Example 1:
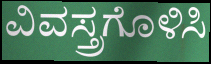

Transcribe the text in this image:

ವಿವಸ್ತ್ರಗೊಳಿಸಿ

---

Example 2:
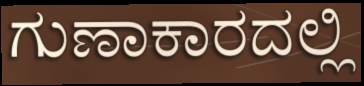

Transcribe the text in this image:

ಗುಣಾಕಾರದಲ್ಲಿ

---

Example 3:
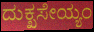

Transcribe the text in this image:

ದುಕ್ಖಸೇಯ್ಯಂ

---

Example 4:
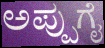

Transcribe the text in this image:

ಅಪ್ಪುಗೈ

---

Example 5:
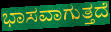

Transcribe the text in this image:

ಭಾಸವಾಗುತ್ತದೆ